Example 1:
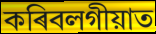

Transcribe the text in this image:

কৰিবলগীয়াত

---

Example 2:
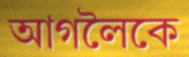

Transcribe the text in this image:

আগলৈকে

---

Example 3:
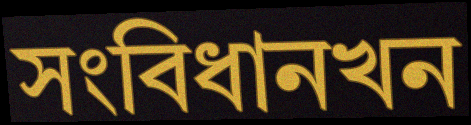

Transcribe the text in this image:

সংবিধানখন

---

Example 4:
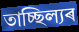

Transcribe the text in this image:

তাচ্ছিল্যৰ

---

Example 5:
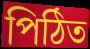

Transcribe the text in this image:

পিঠিত